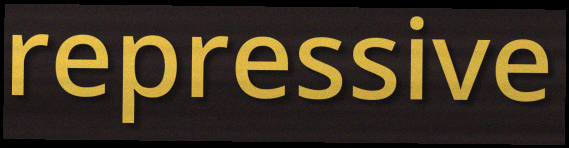
repressive